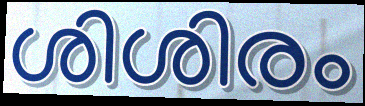
ശിശിരം